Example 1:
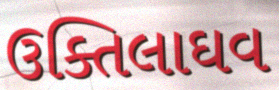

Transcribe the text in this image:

ઉક્તિલાઘવ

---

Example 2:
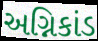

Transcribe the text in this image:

અગ્નિકાંડ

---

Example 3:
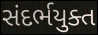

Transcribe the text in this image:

સંદર્ભયુક્ત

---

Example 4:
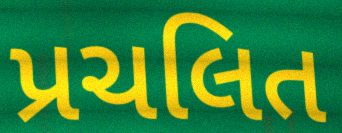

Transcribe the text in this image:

પ્રચલિત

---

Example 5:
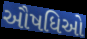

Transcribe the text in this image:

ઔષધિઓ